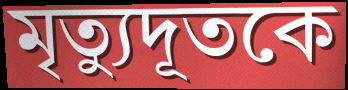
মৃত্যুদূতকে